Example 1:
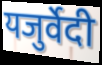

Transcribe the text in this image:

यजुर्वेदी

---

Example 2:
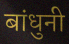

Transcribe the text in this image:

बांधुनी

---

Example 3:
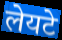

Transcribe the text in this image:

लेयटे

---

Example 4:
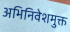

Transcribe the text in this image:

अभिनिवेशमुक्त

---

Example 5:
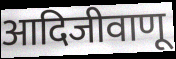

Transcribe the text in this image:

आदिजीवाणू